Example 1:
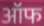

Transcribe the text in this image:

ऑफ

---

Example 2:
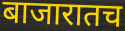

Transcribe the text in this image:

बाजारातच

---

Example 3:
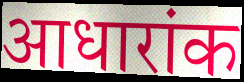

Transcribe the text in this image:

आधारांक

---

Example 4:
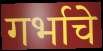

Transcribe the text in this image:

गर्भाचे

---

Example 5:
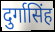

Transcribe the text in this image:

दुर्गासिंह